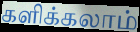
களிக்கலாம்